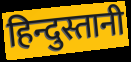
हिन्दुस्तानी